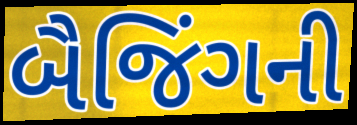
બૈજિંગની